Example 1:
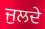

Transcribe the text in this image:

ਜੁਲਦੇ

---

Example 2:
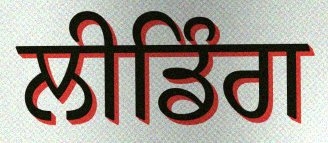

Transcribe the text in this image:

ਲੀਡਿੰਗ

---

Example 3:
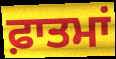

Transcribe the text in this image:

ਫ਼ਾਤਮਾਂ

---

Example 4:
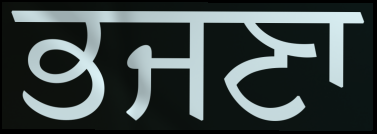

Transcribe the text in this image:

ਭਜਣਾ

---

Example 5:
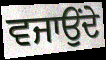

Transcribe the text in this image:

ਵਜਾਉਂਦੇ